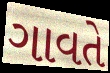
ગાવતે